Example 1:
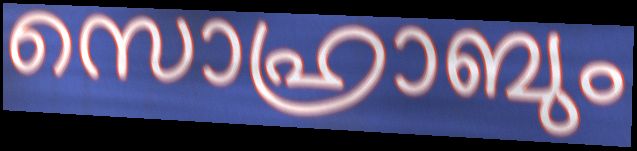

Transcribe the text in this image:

സൊഹ്രാബും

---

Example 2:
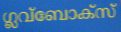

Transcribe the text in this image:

ഗ്ലവ്ബോക്സ്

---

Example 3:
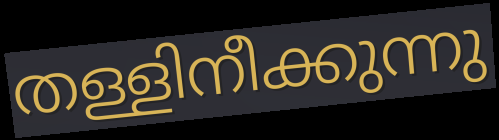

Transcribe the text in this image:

തള്ളിനീക്കുന്നു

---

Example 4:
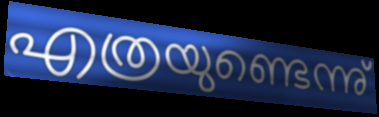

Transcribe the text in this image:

എത്രയുണ്ടെന്നു്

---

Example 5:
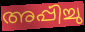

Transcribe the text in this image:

അൎപ്പിച്ചു